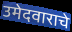
उमेदवाराचे